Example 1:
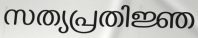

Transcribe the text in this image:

സത്യപ്രതിജ്ഞ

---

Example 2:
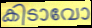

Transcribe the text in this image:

കിടാവോ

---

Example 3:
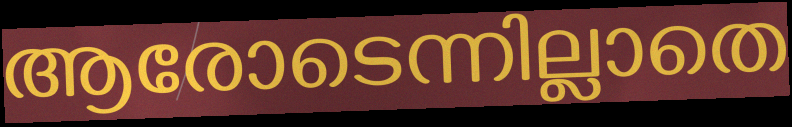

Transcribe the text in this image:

ആരോടെന്നില്ലാതെ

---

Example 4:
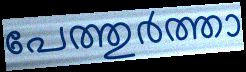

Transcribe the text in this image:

പേത്തുർത്താ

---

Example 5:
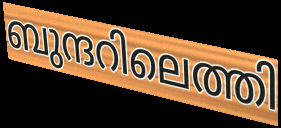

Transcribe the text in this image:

ബുന്ദറിലെത്തി